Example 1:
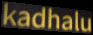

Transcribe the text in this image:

kadhalu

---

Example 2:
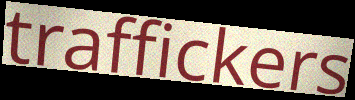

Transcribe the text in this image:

traffickers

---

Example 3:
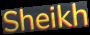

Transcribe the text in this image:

Sheikh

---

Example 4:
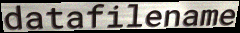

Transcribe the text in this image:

datafilename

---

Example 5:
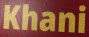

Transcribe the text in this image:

Khani